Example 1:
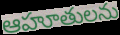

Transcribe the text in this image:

ఆహూతులను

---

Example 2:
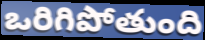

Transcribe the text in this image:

ఒరిగిపోతుంది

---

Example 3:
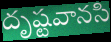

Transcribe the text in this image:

దృష్టవానసి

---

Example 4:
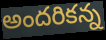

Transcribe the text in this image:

అందరికన్న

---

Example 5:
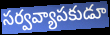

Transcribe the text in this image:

సర్వవ్యాపకుడూ